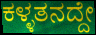
ಕಳ್ಳತನದ್ದೇ